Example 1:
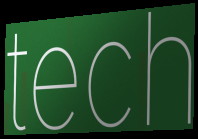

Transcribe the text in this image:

tech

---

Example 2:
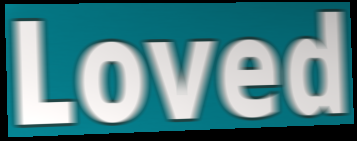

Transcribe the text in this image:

Loved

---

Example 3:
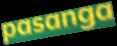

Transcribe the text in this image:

pasanga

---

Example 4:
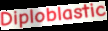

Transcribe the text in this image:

Diploblastic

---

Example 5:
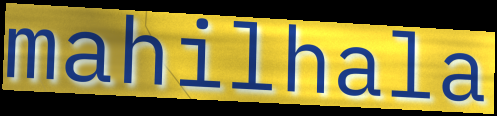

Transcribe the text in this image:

mahilhala